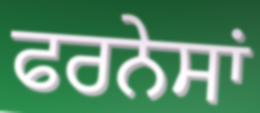
ਫਰਨੇਸਾਂ